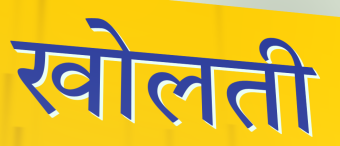
खोलती